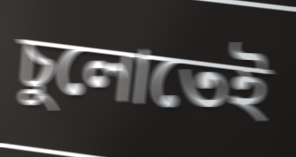
চুলোতেই